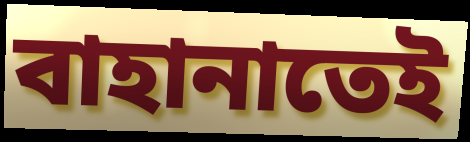
বাহানাতেই